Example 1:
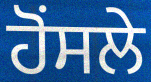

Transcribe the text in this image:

ਹੋਂਸਲੇ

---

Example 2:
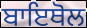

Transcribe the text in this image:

ਬਾਇਥੋਲ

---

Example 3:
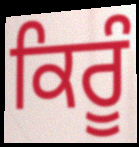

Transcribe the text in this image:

ਕਿਰੂੰ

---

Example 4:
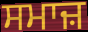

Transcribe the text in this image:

ਸਮਾਜ਼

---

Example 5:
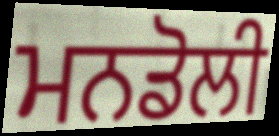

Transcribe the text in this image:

ਮਨਡੋਲੀ